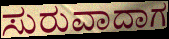
ಸುರುವಾದಾಗ